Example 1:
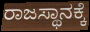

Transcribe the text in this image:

ರಾಜಸ್ಥಾನಕ್ಕೆ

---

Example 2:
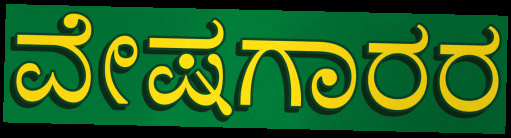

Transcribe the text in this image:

ವೇಷಗಾರರ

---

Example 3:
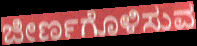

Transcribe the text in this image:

ಜೀರ್ಣಗೊಳಿಸುವ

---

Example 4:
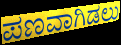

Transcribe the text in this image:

ಪಣವಾಗಿಡಲು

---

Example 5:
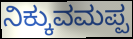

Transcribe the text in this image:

ನಿಕ್ಕುವಮಪ್ಪ